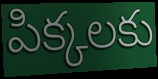
పిక్కలకు